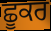
ਛੂਕਰ